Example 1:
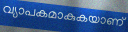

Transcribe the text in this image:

വ്യാപകമാകുകയാണ്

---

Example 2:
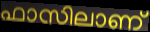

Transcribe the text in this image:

ഫാസിലാണ്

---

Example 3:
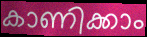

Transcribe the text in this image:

കാണിക്കാം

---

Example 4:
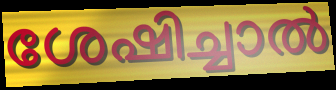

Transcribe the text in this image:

ശേഷിച്ചാൽ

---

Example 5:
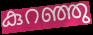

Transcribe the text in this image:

കുറഞ്ഞു